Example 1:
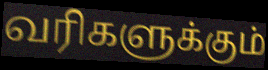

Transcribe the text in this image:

வரிகளுக்கும்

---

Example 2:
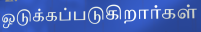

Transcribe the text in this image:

ஒடுக்கப்படுகிறார்கள்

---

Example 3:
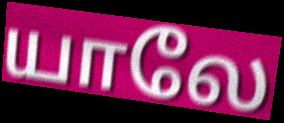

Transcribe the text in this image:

யாலே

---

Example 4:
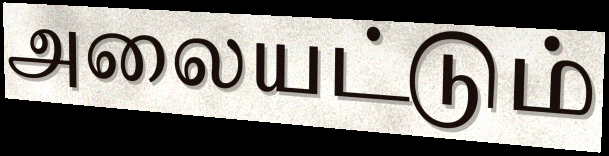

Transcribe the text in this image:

அலையட்டும்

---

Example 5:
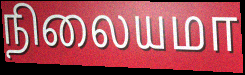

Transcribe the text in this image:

நிலையமா